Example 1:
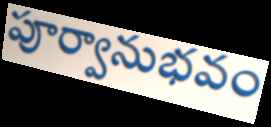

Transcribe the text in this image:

పూర్వానుభవం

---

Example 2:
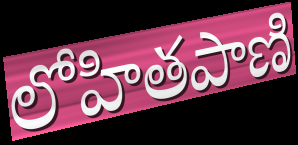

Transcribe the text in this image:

లోహితపాణి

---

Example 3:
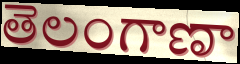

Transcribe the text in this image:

తెలంగాణా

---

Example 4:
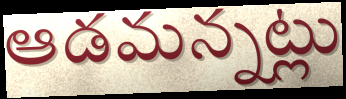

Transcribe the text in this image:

ఆడమన్నట్లు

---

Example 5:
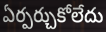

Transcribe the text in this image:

ఏర్పర్చుకోలేదు